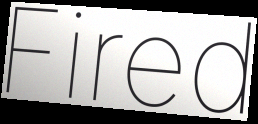
Fired